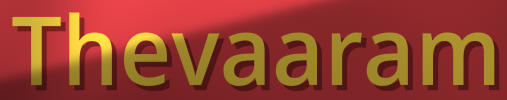
Thevaaram